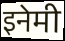
इनेमी